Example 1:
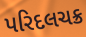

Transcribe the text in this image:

પરિદલચક્ર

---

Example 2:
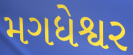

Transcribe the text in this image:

મગધેશ્વર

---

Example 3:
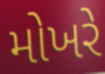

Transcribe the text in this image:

મોખરે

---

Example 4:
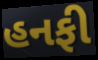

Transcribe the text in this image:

હનફી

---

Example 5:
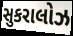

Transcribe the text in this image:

સુકરાલોઝ